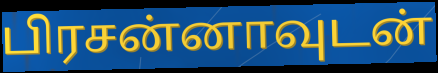
பிரசன்னாவுடன்